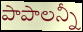
పాపాలన్నీ